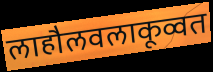
लाहौलवलाकूव्वत